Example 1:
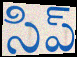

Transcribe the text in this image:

సిప్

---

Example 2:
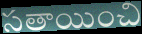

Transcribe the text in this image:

సతాయించి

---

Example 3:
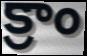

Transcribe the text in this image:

క్రాం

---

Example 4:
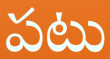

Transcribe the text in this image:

పటు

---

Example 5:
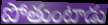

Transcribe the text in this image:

పోతుంటాడు